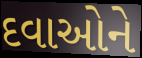
દવાઓને